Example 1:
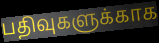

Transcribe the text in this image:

பதிவுகளுக்காக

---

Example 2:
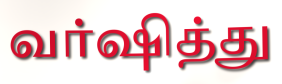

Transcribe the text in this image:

வர்ஷித்து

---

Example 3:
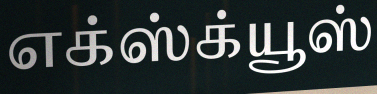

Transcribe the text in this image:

எக்ஸ்க்யூஸ்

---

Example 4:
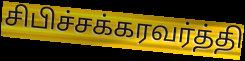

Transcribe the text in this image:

சிபிச்சக்கரவர்த்தி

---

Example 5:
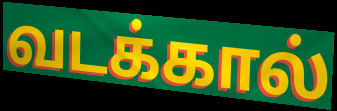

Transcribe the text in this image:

வடக்கால்